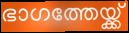
ഭാഗത്തേയ്ക്ക്